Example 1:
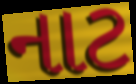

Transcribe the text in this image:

નાટ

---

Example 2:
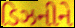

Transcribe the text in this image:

ડિઝનીને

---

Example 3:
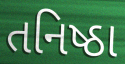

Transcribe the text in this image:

તનિષ્ઠા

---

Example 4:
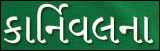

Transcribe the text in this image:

કાર્નિવલના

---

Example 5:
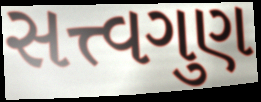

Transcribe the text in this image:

સત્ત્વગુણ